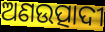
ଅଣଉତ୍ପାଦୀ